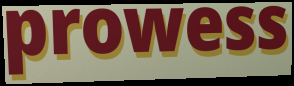
prowess